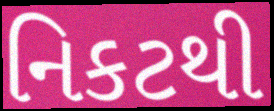
નિકટથી